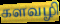
களவழி